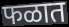
फळात